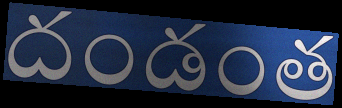
దండంత